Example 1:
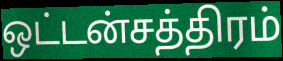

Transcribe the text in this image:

ஒட்டன்சத்திரம்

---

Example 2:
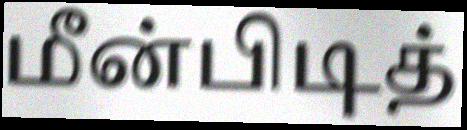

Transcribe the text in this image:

மீன்பிடித்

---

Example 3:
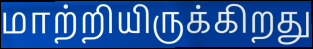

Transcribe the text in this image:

மாற்றியிருக்கிறது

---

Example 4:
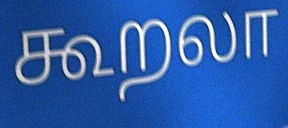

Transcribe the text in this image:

கூறலா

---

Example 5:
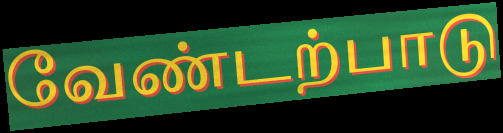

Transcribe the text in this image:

வேண்டற்பாடு